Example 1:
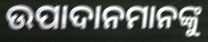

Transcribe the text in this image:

ଉପାଦାନମାନଙ୍କୁ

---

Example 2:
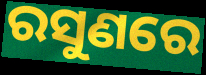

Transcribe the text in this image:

ରସୁଣରେ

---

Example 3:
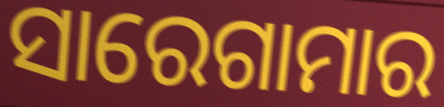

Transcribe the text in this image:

ସାରେଗାମାର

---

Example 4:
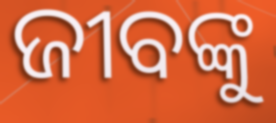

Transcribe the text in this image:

ଜୀବଙ୍କୁ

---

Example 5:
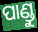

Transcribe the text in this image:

ପାଣ୍ଡୁ